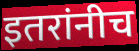
इतरांनीच